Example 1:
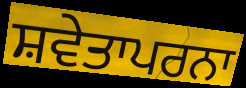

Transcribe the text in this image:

ਸ਼ਵੇਤਾਪਰਨਾ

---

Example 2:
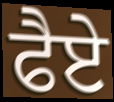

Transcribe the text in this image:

ਫੈਏ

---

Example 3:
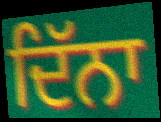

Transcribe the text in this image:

ਦਿੱਨਾ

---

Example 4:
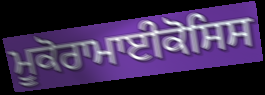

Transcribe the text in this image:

ਮੂਕੋਰਾਮਾਈਕੋਸਿਸ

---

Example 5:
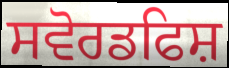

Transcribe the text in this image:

ਸਵੋਰਡਫਿਸ਼